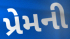
પ્રેમની